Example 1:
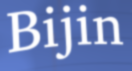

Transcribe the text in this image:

Bijin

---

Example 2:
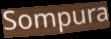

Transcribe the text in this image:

Sompura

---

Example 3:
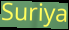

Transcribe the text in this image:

Suriya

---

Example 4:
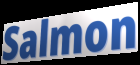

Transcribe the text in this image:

Salmon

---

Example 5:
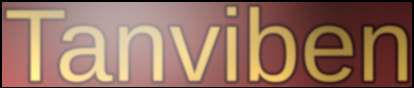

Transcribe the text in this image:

Tanviben